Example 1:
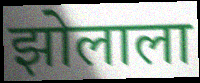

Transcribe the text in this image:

झोलाला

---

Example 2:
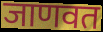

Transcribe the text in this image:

जाणवत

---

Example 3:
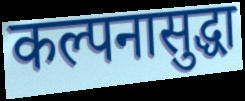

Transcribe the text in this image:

कल्पनासुद्धा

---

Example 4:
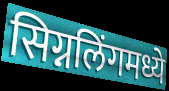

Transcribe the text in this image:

सिग्नलिंगमध्ये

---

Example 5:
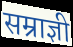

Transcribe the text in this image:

सम्राज्ञी